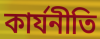
কার্যনীতি